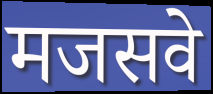
मजसवे